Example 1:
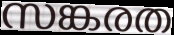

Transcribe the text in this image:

സങ്കരത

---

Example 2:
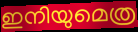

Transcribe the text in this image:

ഇനിയുമെത്ര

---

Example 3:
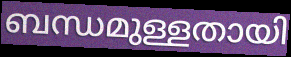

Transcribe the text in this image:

ബന്ധമുള്ളതായി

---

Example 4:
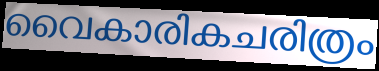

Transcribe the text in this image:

വൈകാരികചരിത്രം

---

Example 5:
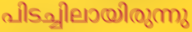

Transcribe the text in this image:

പിടച്ചിലായിരുന്നു